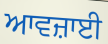
ਆਵਜ਼ਾਈ